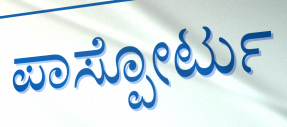
ಪಾಸ್ಪೋರ್ಟು